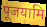
पूजयामि